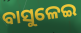
ବାସୁଳେଇ